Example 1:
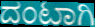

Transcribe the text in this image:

ದಂಟಾಗಿ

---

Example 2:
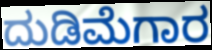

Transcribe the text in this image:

ದುಡಿಮೆಗಾರ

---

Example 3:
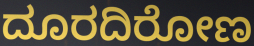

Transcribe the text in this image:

ದೂರದಿರೋಣ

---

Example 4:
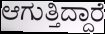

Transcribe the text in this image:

ಆಗುತ್ತಿದ್ದಾರೆ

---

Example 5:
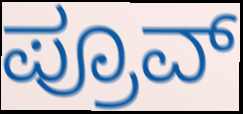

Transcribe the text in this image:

ಪ್ರೂವ್